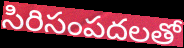
సిరిసంపదలతో